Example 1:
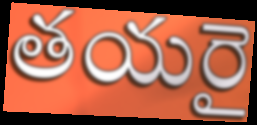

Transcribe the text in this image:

తయరై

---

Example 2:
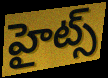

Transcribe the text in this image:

హైట్స్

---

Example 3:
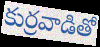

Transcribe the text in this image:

కుర్రవాడితో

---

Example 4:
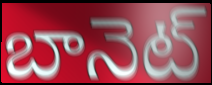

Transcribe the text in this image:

బానెట్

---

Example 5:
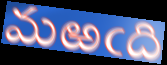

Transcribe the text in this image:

మఱఁది